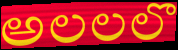
అలలలొ